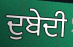
ਦੁਬੇਦੀ